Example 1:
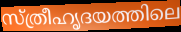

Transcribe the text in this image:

സ്ത്രീഹൃദയത്തിലെ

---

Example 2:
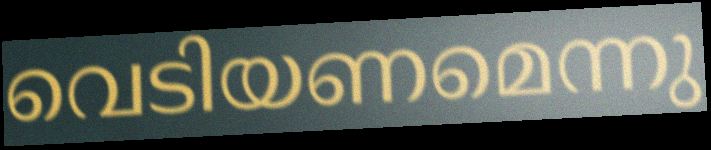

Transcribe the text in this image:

വെടിയണമെന്നു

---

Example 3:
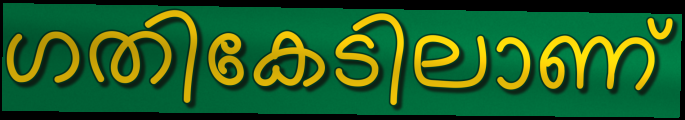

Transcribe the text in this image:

ഗതികേടിലാണ്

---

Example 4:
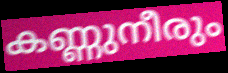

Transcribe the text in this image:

കണ്ണുനീരും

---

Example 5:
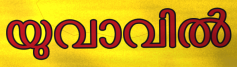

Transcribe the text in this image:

യുവാവിൽ